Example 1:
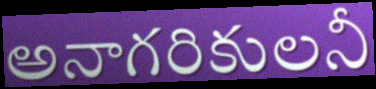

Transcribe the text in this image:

అనాగరికులనీ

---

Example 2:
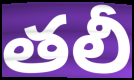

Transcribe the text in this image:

తలీ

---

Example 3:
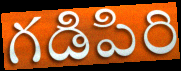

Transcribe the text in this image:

గడిపిరి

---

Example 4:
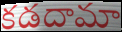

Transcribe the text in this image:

కడదామా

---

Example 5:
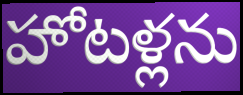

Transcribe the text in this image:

హోటళ్లను